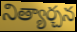
నిత్యార్చన